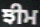
ਝੀਮ